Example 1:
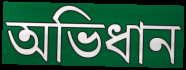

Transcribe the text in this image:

অভিধান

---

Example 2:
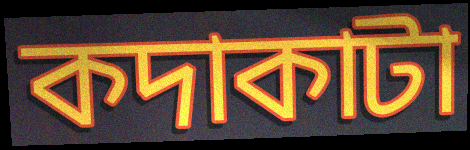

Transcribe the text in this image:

কদাকাটা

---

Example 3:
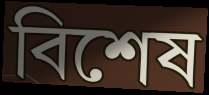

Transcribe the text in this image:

বিশেষ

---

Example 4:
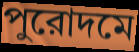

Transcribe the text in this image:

পুরোদমে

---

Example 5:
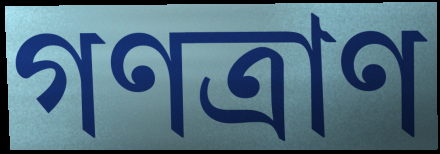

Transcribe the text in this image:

গণত্রাণ